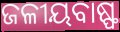
ଜଳୀୟବାଷ୍ଫ